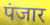
पंजार